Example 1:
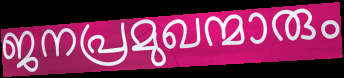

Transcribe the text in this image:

ജനപ്രമുഖന്മാരും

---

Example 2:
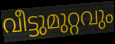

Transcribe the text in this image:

വീട്ടുമുറ്റവും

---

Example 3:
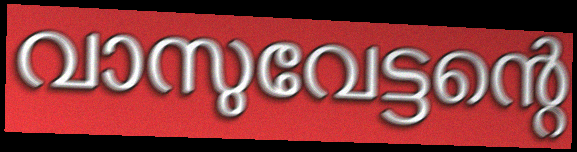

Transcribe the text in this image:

വാസുവേട്ടന്റെ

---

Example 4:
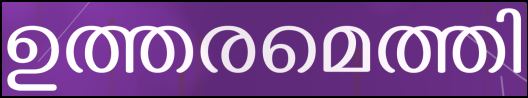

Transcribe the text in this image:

ഉത്തരമെത്തി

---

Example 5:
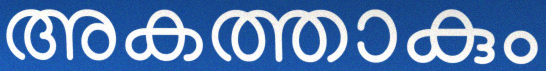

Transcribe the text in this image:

അകത്താകും